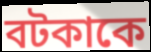
বটকাকে